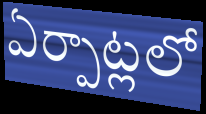
ఏర్పాట్లలో